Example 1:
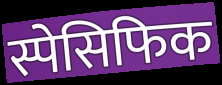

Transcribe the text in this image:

स्पेसिफिक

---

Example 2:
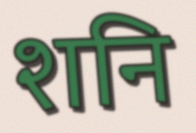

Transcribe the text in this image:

शनि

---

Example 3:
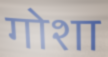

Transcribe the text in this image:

गोशा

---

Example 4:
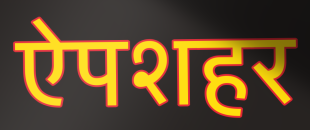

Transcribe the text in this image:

ऐपशहर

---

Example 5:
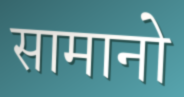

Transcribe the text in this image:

सामानो